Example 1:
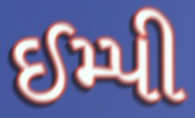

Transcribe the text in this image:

ઈમ્પી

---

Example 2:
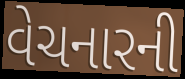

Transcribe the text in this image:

વેચનારની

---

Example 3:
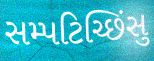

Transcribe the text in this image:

સમ્પટિચ્છિંસુ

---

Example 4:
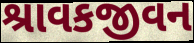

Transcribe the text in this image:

શ્રાવકજીવન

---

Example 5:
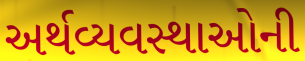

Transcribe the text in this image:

અર્થવ્યવસ્થાઓની